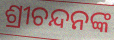
ଶ୍ରୀଚନ୍ଦନଙ୍କ